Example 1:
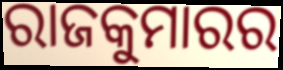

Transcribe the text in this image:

ରାଜକୁମାରର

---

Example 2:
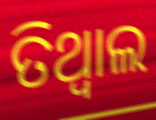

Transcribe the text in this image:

ତିଥ୍ୱାଲ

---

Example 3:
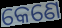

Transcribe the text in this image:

କେଣେ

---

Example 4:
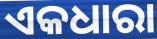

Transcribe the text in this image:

ଏକଧାରା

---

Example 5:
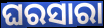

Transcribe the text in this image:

ଘରସାରା